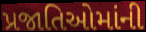
પ્રજાતિઓમાંની